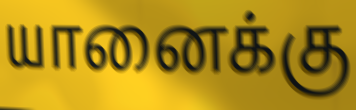
யானைக்கு